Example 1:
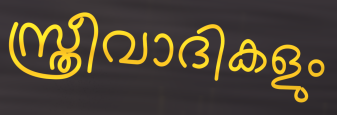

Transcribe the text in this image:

സ്ത്രീവാദികളും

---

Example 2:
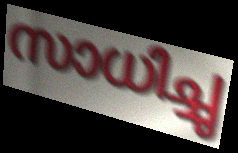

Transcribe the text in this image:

സാധിച്ചു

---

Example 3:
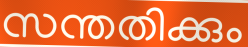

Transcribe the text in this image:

സന്തതിക്കും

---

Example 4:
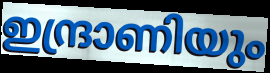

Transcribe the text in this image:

ഇന്ദ്രാണിയും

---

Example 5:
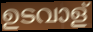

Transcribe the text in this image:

ഉടവാള്